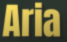
Aria